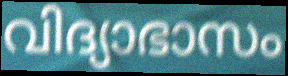
വിദ്യാഭാസം